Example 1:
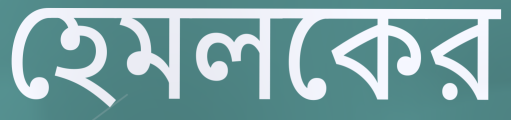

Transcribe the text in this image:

হেমলকের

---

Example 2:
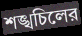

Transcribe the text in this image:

শঙ্খচিলের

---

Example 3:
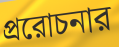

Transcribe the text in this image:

প্ররোচনার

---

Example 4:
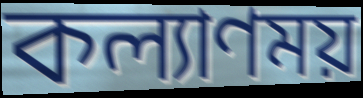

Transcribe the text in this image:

কল্যাণময়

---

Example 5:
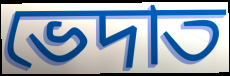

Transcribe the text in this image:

ভেদাত